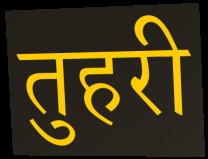
तुहरी